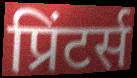
प्रिंटर्स